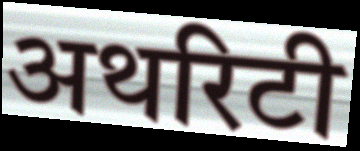
अथरिटी